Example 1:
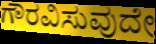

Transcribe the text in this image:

ಗೌರವಿಸುವುದೇ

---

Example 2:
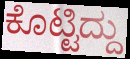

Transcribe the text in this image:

ಕೊಟ್ಟಿದ್ದು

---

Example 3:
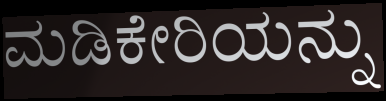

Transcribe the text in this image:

ಮಡಿಕೇರಿಯನ್ನು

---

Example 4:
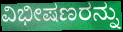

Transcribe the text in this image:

ವಿಭೀಷಣರನ್ನು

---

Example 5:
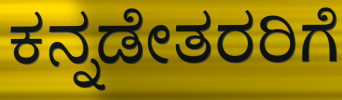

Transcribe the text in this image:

ಕನ್ನಡೇತರರಿಗೆ